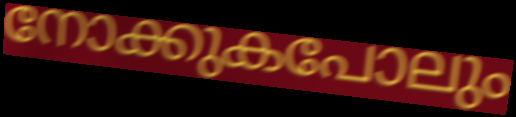
നോക്കുകപോലും